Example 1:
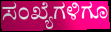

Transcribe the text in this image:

ಸಂಖ್ಯೆಗಳಿಗೂ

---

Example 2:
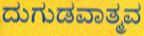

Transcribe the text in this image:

ದುಗುಡವಾತ್ಮವ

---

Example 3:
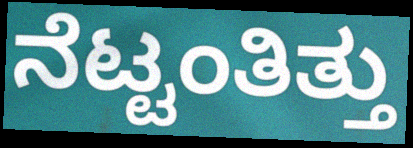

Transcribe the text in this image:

ನೆಟ್ಟಂತಿತ್ತು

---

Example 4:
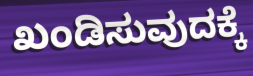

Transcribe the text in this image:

ಖಂಡಿಸುವುದಕ್ಕೆ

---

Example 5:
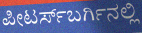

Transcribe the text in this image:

ಪೀಟರ್ಸ್‍ಬರ್ಗಿನಲ್ಲಿ